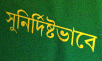
সুনির্দিষ্টভাবে